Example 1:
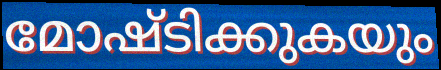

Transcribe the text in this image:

മോഷ്ടിക്കുകയും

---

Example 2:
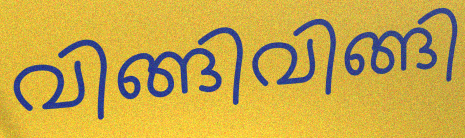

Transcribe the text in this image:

വിങ്ങിവിങ്ങി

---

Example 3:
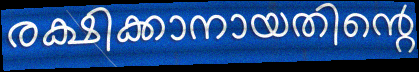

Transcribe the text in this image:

രക്ഷിക്കാനായതിന്റെ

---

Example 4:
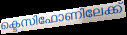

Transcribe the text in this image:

ക്ടെസിഫോണിലേക്ക്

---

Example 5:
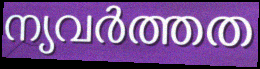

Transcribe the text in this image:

ന്യവർത്തത